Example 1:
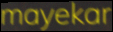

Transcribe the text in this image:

mayekar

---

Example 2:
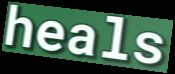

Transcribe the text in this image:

heals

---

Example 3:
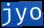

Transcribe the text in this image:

jyo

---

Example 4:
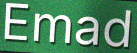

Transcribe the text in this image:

Emad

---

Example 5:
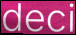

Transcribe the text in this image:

deci